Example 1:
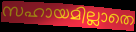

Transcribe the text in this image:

സഹായമില്ലാതെ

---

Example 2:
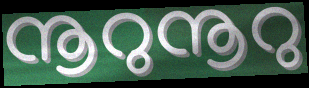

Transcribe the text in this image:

നൂറുനൂറു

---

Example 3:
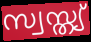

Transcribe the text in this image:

സ്വസ്ത്യ്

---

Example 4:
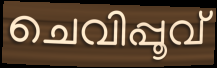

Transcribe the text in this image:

ചെവിപ്പൂവ്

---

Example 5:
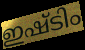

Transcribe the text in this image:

ഇഷ്ടിം